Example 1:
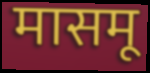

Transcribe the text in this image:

मासमू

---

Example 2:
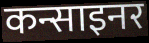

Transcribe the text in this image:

कन्साइनर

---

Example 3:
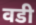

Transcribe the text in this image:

वडी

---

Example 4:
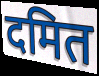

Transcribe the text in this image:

दमित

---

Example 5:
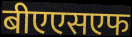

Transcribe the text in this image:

बीएएसएफ